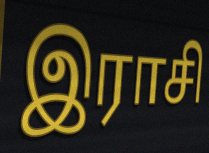
இராசி